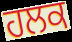
ਹਲਕ